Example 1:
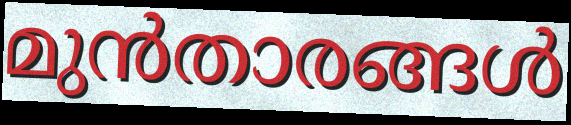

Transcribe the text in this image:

മുൻതാരങ്ങൾ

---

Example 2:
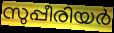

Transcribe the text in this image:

സുപ്പീരിയർ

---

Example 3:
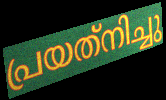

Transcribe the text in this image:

പ്രയത്‌നിച്ചു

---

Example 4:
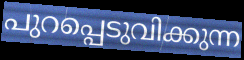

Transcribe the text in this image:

പുറപ്പെടുവിക്കുന്ന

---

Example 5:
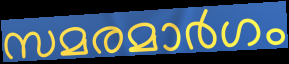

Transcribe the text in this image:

സമരമാർഗം